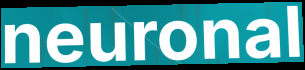
neuronal